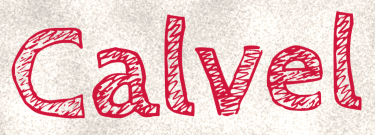
Calvel